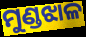
ମୁଣ୍ଡଝାଳ